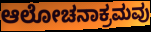
ಆಲೋಚನಾಕ್ರಮವು